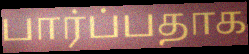
பார்ப்பதாக